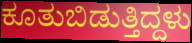
ಕೂತುಬಿಡುತ್ತಿದ್ದಳು